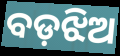
ବଡ଼ଝିଅ